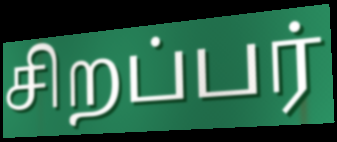
சிறப்பர்